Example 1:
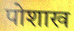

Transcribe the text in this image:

पोशाख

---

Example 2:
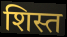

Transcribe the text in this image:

शिस्त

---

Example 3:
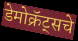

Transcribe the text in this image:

डेमोक्रॅट्सचे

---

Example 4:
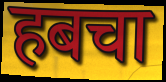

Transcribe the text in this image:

हबचा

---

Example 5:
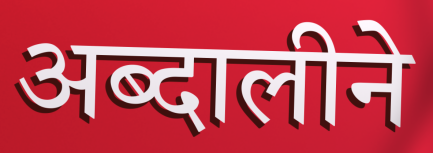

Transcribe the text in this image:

अब्दालीने